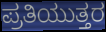
ಪ್ರತಿಯುತ್ತರ